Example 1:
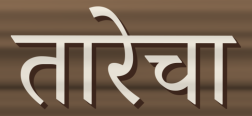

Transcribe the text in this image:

तारेचा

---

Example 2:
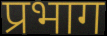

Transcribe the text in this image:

प्रभाग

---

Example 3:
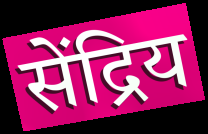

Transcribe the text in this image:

सेंद्रिय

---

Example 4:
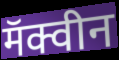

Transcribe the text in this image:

मॅक्वीन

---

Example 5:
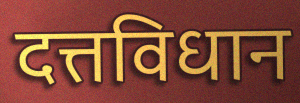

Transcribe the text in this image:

दत्तविधान